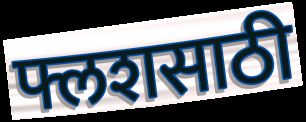
फ्लशसाठी